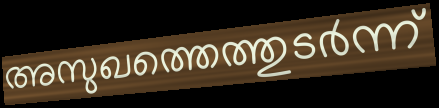
അസുഖത്തെത്തുടർന്ന്